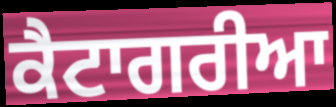
ਕੈਟਾਗਰੀਆ